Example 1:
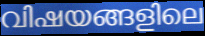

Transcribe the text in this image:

വിഷയങ്ങളിലെ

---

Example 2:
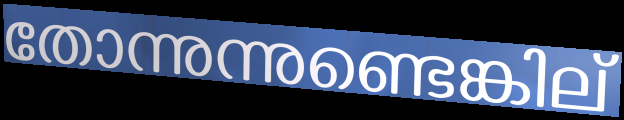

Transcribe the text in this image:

തോന്നുന്നുണ്ടെങ്കില്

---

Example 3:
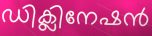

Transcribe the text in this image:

ഡിക്ലിനേഷൻ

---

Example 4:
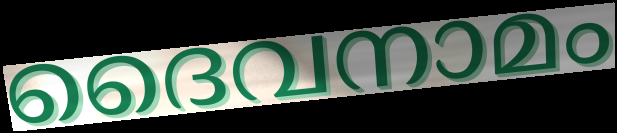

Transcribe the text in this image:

ദൈവനാമം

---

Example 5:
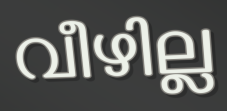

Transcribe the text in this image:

വീഴില്ല